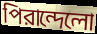
পিরান্দেলো